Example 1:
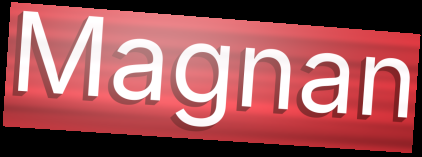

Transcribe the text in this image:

Magnan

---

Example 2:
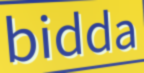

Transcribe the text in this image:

bidda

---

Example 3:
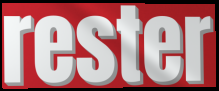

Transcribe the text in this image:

rester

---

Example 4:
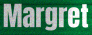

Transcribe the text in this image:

Margret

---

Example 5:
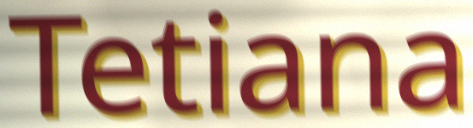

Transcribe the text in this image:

Tetiana